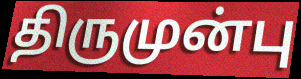
திருமுன்பு